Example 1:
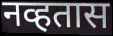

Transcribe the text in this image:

नव्हतास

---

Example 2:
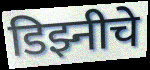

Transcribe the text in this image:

डिझ्नीचे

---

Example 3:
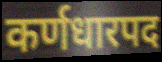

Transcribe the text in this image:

कर्णधारपद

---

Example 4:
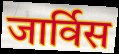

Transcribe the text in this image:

जार्विस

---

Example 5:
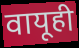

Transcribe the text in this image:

वायूही